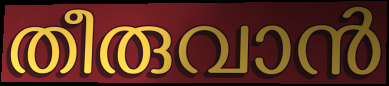
തീരുവാൻ